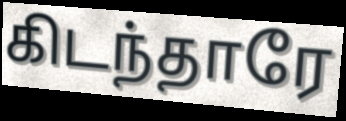
கிடந்தாரே